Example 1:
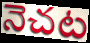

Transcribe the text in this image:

నెచట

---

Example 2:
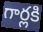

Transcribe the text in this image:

గార్లకి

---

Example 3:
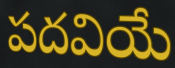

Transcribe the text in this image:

పదవియే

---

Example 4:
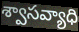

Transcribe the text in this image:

శ్వాసవ్యాధి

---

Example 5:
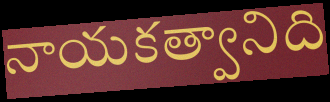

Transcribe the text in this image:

నాయకత్వానిది